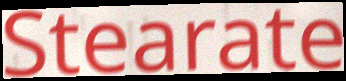
Stearate